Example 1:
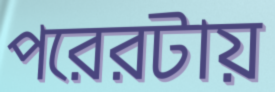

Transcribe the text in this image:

পরেরটায়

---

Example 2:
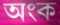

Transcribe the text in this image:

অংক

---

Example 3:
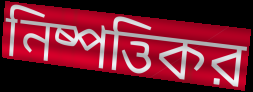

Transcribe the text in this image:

নিষ্পত্তিকর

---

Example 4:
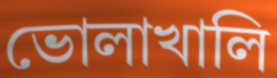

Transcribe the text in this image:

ভোলাখালি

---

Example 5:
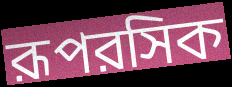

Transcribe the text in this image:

রূপরসিক